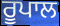
ਰੂਪਾਲ